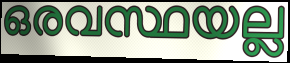
ഒരവസ്ഥയല്ല